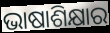
ଭାଷାଶିକ୍ଷାର